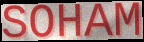
SOHAM